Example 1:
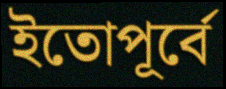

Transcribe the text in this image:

ইতোপূর্বে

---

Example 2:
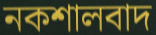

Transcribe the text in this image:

নকশালবাদ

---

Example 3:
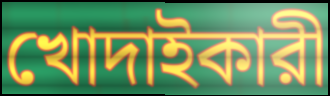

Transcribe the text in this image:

খোদাইকারী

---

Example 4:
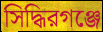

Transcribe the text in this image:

সিদ্ধিরগঞ্জে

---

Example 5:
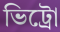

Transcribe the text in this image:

ভিট্রো